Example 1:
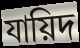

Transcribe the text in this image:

যায়িদ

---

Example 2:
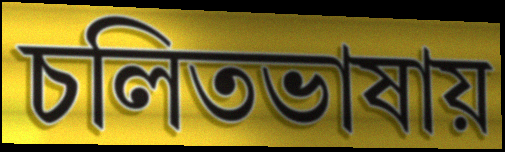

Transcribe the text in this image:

চলিতভাষায়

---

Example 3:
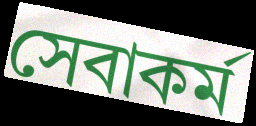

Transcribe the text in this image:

সেবাকর্ম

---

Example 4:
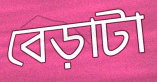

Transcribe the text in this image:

বেড়াটা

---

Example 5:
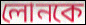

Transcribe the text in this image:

লোনকে